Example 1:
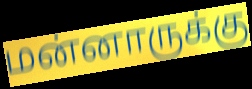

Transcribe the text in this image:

மன்னாருக்கு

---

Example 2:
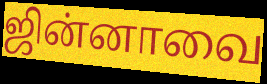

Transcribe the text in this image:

ஜின்னாவை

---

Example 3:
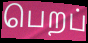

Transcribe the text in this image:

பெறப்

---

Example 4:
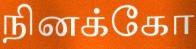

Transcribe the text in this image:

நினக்கோ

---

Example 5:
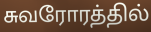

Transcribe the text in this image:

சுவரோரத்தில்